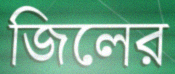
জিলের